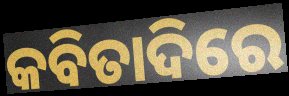
କବିତାଦିରେ